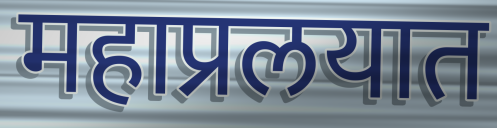
महाप्रलयात